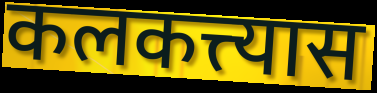
कलकत्त्यास